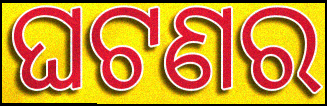
ଘଟଣର